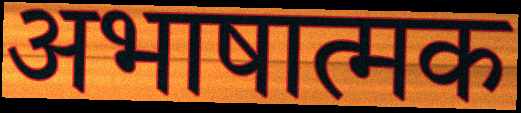
अभाषात्मक